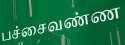
பச்சைவண்ண